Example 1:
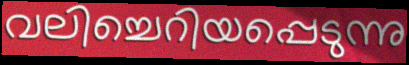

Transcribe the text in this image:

വലിച്ചെറിയപ്പെടുന്നു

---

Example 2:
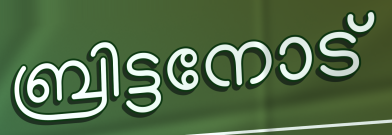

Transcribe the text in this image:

ബ്രിട്ടനോട്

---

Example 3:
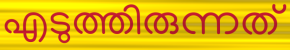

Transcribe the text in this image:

എടുത്തിരുന്നത്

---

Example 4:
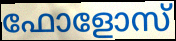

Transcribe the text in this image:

ഫോളോസ്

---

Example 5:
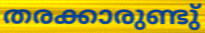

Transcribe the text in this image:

തരക്കാരുണ്ടു്